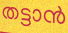
തട്ടാൻ